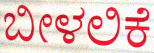
ಬೀಳಲಿಕೆ